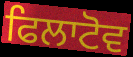
ਫਿਲਾਟੋਵ